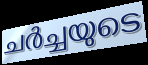
ചർച്ചയുടെ